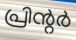
പ്രിന്റർ